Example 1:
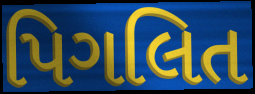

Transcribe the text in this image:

પિગલિત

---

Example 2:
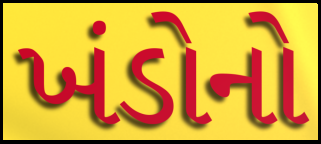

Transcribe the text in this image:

ખંડોનો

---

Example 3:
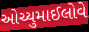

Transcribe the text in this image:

ઓચ્યુમાઈલોવે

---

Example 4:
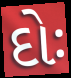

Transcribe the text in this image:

દોઃ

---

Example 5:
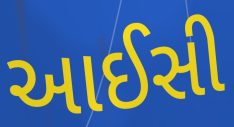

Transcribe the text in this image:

આઈસી